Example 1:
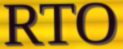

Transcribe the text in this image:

RTO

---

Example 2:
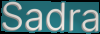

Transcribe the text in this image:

Sadra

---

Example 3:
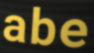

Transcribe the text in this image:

abe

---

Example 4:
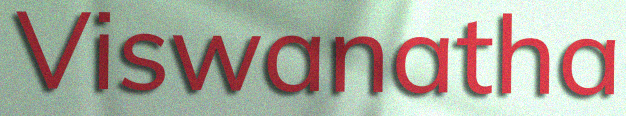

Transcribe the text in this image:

Viswanatha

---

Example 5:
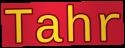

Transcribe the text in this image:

Tahr